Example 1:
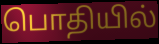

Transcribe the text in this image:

பொதியில்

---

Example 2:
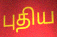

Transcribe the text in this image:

புதிய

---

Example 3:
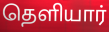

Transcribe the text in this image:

தெளியார்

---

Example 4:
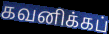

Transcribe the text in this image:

கவனிக்கப்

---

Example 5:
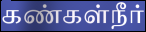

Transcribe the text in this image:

கண்கள்நீர்